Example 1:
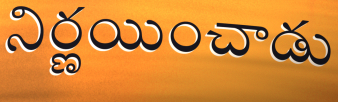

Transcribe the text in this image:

నిర్ణయించాడు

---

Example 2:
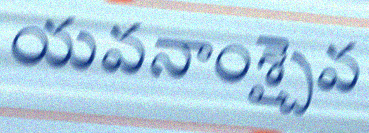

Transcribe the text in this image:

యవనాంశ్చైవ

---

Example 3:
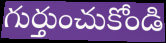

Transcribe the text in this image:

గుర్తుంచుకోండి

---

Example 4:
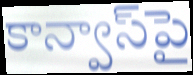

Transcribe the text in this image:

కాన్వాస్‌పై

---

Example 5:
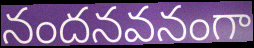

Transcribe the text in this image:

నందనవనంగా